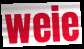
weie